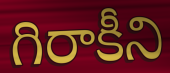
గిరాకీని